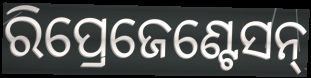
ରିପ୍ରେଜେଣ୍ଟେସନ୍